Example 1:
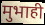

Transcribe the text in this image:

मुभाही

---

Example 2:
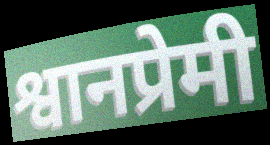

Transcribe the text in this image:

श्वानप्रेमी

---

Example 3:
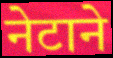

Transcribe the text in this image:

नेटाने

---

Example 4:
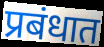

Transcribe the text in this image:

प्रबंधात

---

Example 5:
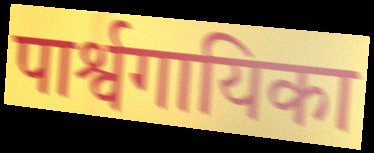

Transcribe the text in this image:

पार्श्वगायिका